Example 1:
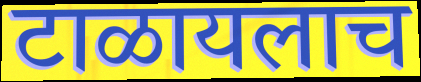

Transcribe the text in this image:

टाळायलाच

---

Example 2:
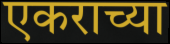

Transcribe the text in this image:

एकराच्या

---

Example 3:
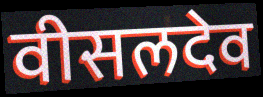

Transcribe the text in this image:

वीसलदेव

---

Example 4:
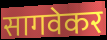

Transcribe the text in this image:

सागवेकर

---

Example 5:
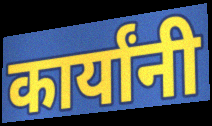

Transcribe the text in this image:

कार्यांनी